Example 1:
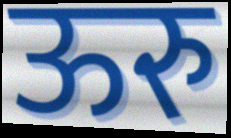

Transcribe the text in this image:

ऊरु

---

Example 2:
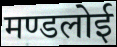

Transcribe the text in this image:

मण्डलोई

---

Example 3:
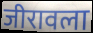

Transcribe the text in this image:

जीरावला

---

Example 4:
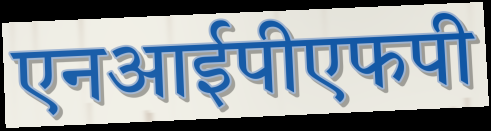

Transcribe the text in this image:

एनआईपीएफपी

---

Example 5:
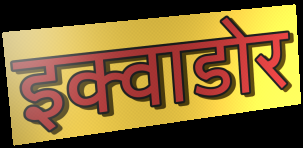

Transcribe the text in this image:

इक्वाडोर